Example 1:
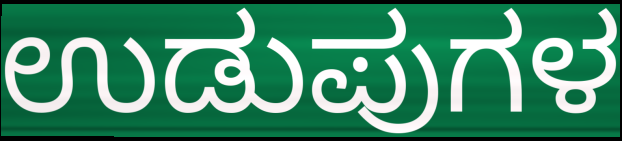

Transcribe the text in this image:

ಉಡುಪುಗಳ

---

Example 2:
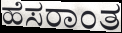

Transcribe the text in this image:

ಹೆಸರಾಂತ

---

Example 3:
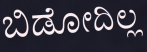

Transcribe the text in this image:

ಬಿಡೋದಿಲ್ಲ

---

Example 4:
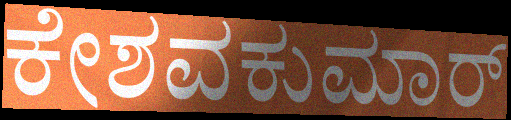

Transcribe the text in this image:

ಕೇಶವಕುಮಾರ್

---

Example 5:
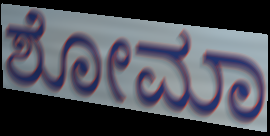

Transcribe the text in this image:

ಶೋಮಾ